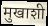
मुखाशी